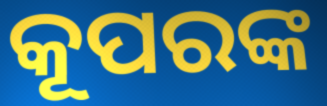
କୂପରଙ୍କ